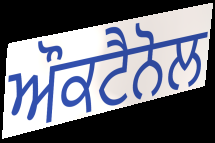
ਔਕਟੈਨੋਲ